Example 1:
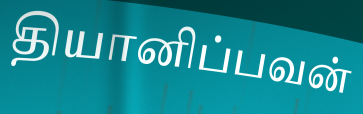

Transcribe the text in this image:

தியானிப்பவன்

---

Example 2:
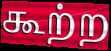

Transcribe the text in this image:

கூற்ற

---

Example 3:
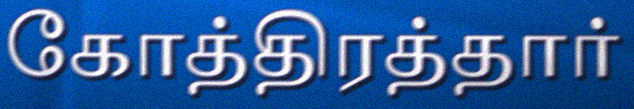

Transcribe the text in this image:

கோத்திரத்தார்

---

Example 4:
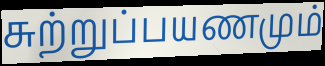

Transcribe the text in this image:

சுற்றுப்பயணமும்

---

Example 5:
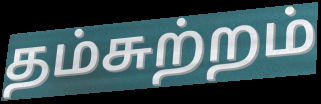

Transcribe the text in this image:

தம்சுற்றம்